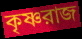
কৃষ্ণরাজ